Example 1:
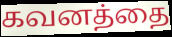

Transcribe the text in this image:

கவனத்தை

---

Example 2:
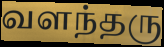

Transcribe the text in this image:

வளந்தரு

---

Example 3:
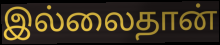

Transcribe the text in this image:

இல்லைதான்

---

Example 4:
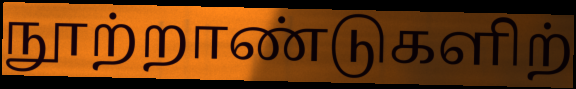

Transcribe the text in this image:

நூற்றாண்டுகளிற்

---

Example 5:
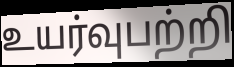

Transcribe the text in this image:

உயர்வுபற்றி